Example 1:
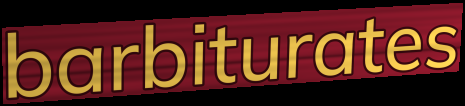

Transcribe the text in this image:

barbiturates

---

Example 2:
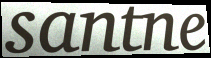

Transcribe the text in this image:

santne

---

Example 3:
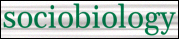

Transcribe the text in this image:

sociobiology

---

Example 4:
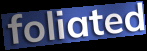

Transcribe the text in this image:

foliated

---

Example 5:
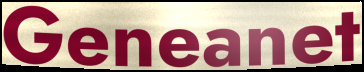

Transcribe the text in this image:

Geneanet